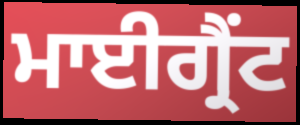
ਮਾਈਗ੍ਰੈਂਟ